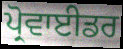
ਪ੍ਰੋਵਾਈਡਰ